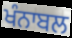
ਖੰਨਾਬਲ